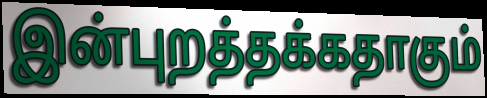
இன்புறத்தக்கதாகும்